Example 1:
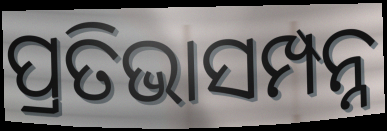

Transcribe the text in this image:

ପ୍ରତିଭାସମ୍ପନ୍ନ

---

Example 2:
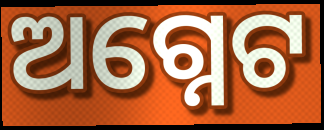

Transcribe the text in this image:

ଅଗ୍ନେଟ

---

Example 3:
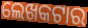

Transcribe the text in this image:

ଲେଖକଟାର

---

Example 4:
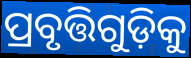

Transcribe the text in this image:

ପ୍ରବୃତ୍ତିଗୁଡ଼ିକୁ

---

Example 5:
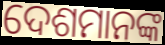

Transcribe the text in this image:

ଦେଶମାନଙ୍କ